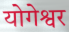
योगेश्वर